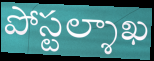
పోస్టల్శాఖ